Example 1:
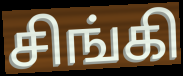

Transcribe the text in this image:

சிங்கி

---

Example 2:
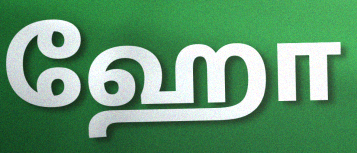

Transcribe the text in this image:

ஹோ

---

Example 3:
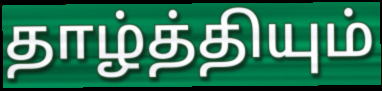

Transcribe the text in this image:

தாழ்த்தியும்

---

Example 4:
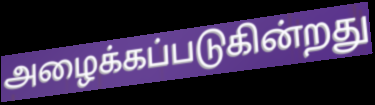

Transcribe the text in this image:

அழைக்கப்படுகின்றது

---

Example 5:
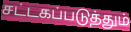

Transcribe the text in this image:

சட்டகப்படுத்தும்